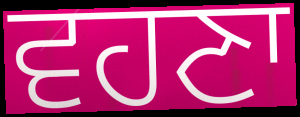
ਵਹਣਾ